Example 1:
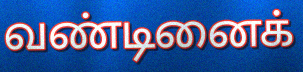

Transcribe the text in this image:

வண்டினைக்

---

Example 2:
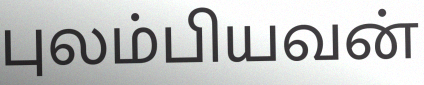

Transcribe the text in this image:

புலம்பியவன்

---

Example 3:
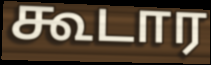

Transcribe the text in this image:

கூடார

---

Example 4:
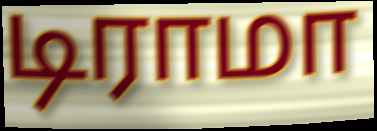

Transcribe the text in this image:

டிராமா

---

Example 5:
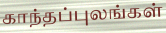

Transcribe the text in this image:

காந்தப்புலங்கள்